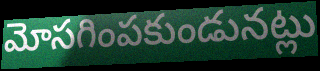
మోసగింపకుండునట్లు